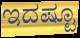
ಇದಷ್ಟೂ